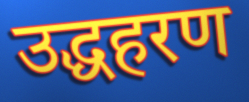
उद्धहरण